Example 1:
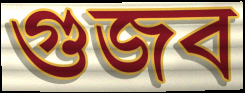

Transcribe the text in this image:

গুজব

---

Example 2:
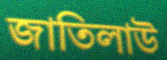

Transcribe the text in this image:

জাতিলাউ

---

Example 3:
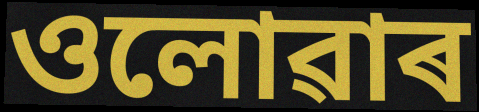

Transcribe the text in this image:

ওলোৱাৰ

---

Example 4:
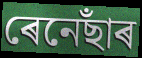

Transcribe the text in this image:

ৰেনেছাঁৰ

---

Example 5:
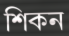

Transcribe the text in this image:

শিকন